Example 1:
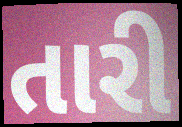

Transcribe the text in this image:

તારી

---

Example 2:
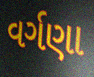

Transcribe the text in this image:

વર્ગણા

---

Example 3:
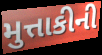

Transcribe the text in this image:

મુત્તાકીની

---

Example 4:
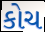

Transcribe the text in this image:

કોચ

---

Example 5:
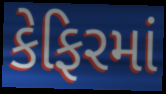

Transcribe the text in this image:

કેફિરમાં